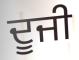
ਦੂਜੀ